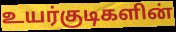
உயர்குடிகளின்